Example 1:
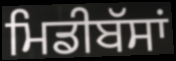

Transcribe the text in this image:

ਮਿਡੀਬੱਸਾਂ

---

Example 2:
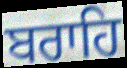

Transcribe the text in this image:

ਬਰਾਹਿ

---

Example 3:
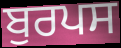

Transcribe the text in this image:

ਬੁਰਪਸ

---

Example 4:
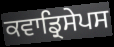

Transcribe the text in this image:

ਕਵਾਡ੍ਰਿਸੇਪਸ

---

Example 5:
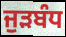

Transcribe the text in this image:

ਜੁੜਬੰਧ